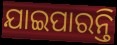
ଯାଇପାରନ୍ତି